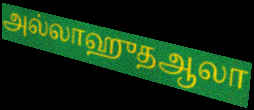
அல்லாஹுதஆலா